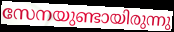
സേനയുണ്ടായിരുന്നു